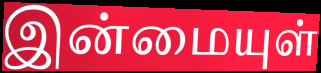
இன்மையுள்